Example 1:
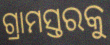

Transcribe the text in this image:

ଗ୍ରାମସ୍ତରକୁ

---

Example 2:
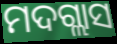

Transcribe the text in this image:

ମଦଗ୍ଲାସ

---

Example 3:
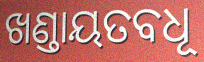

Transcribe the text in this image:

ଖଣ୍ଡାୟତବଧୂ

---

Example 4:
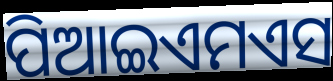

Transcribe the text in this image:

ପିଆଇଏମଏସ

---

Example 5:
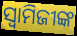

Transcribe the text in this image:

ସ୍ବାମିଜୀଙ୍କ